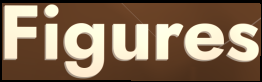
Figures